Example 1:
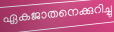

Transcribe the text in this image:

ഏകജാതനെക്കുറിച്ചു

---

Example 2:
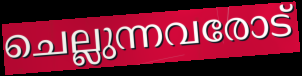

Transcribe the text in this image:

ചെല്ലുന്നവരോട്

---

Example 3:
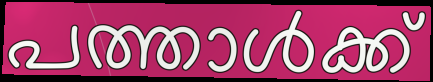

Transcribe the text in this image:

പത്താൾക്ക്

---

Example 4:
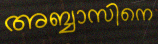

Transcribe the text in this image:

അബ്ബാസിനെ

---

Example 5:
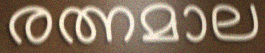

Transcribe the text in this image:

രത്നമാല